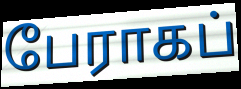
பேராகப்